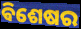
ଵିଶେଷର